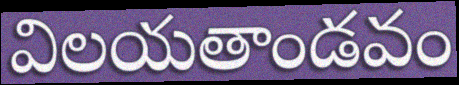
విలయతాండవం